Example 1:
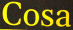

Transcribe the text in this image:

Cosa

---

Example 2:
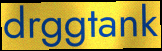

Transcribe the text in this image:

drggtank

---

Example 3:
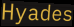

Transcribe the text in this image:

Hyades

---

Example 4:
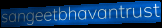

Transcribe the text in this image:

sangeetbhavantrust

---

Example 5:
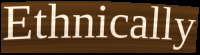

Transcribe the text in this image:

Ethnically